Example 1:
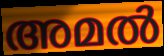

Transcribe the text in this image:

അമൽ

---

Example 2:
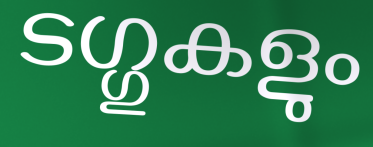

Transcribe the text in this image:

ടഗ്ഗുകളും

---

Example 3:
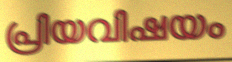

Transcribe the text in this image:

പ്രിയവിഷയം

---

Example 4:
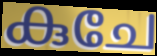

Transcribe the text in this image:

കുചേ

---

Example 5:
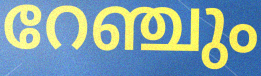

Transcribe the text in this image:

റേഞ്ചും